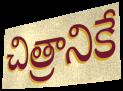
చిత్రానికే